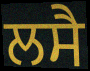
ਲਸੈ